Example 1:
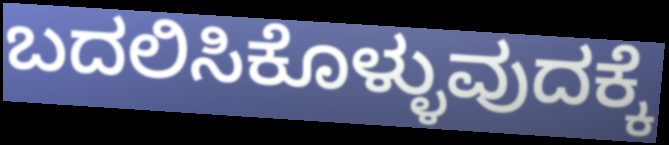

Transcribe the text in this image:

ಬದಲಿಸಿಕೊಳ್ಳುವುದಕ್ಕೆ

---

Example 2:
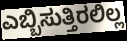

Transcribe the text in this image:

ಎಬ್ಬಿಸುತ್ತಿರಲಿಲ್ಲ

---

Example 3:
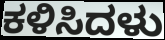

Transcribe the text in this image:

ಕಳಿಸಿದಳು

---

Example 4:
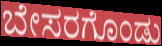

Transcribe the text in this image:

ಬೇಸರಗೊಂಡು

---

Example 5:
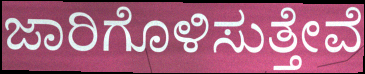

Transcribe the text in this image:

ಜಾರಿಗೊಳಿಸುತ್ತೇವೆ